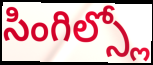
సింగిల్స్లో